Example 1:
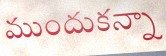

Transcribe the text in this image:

ముందుకన్నా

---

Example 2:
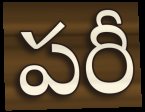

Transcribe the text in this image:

పరీ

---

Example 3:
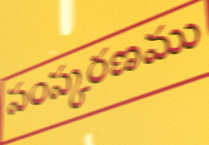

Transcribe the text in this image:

సంస్కరణము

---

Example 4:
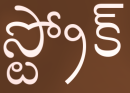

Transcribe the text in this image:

స్ట్రోక్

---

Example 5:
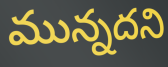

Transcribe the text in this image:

మున్నదని